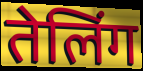
तेलिंग